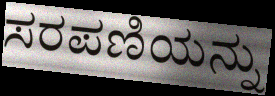
ಸರಪಣಿಯನ್ನು